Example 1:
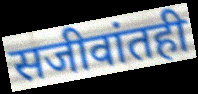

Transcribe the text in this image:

सजीवांतही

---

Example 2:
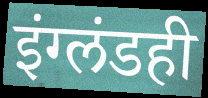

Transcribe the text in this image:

इंग्लंडही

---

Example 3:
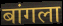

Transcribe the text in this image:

बांगला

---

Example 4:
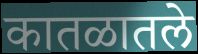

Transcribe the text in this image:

कातळातले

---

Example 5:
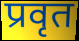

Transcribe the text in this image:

प्रवृत